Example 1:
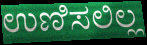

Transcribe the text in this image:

ಉಣಿಸಲಿಲ್ಲ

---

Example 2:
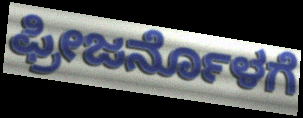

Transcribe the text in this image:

ಫ್ರೀಜರ್ನೊಳಗೆ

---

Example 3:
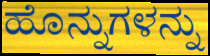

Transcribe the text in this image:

ಹೊನ್ನುಗಳನ್ನು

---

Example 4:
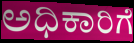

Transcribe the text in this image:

ಅಧಿಕಾರಿಗೆ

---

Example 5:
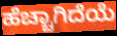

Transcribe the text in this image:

ಹೆಚ್ಚಾಗಿದೆಯೆ